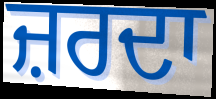
ਜ਼ਰਦਾ